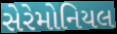
સેરેમોનિયલ